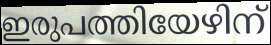
ഇരുപത്തിയേഴിന്